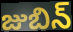
జుబిన్